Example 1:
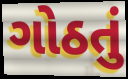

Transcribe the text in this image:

ગોઠતું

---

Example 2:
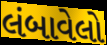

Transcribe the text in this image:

લંબાવેલો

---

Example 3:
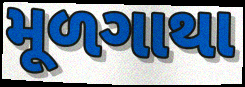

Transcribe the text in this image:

મૂળગાથા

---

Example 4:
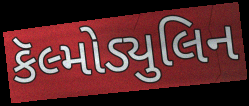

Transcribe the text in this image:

કૅલ્મોડ્યુલિન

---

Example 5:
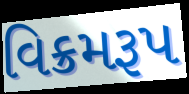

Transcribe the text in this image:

વિક્રમરૂપ